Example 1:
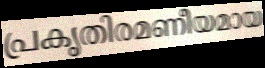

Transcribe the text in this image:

പ്രകൃതിരമണീയമായ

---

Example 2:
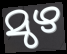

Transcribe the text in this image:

മുഴ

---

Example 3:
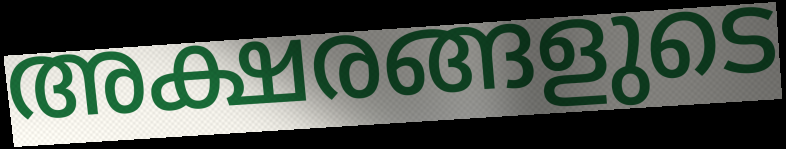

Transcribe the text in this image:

അക്ഷരങ്ങളുടെ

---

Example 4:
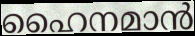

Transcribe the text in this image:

ഹൈനമാൻ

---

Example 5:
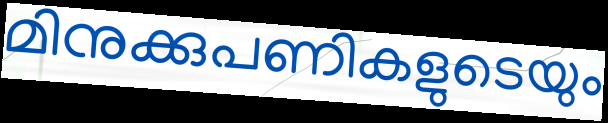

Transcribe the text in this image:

മിനുക്കുപണികളുടെയും